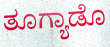
ತೂಗ್ಯಾಡೊ